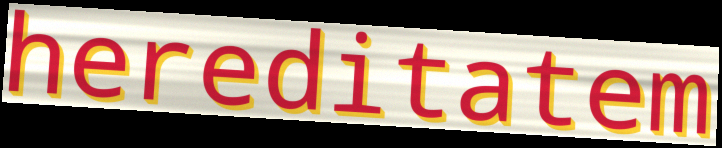
hereditatem